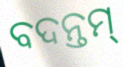
ବଦନ୍ତମ୍